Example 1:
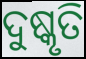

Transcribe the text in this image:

ଦୁଷ୍କୃତି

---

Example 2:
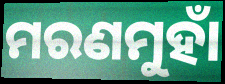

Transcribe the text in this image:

ମରଣମୁହାଁ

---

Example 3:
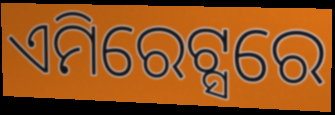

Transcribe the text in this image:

ଏମିରେଟ୍ସରେ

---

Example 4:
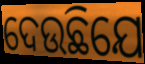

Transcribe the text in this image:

ଦେଉଛିଯେ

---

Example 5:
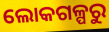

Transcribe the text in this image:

ଲୋକଗଳ୍ପରୁ